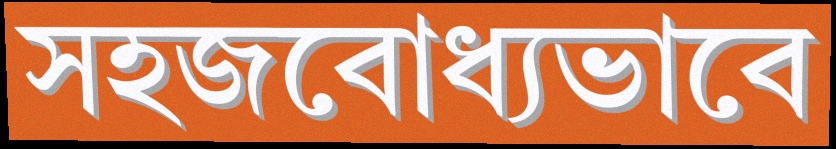
সহজবোধ্যভাবে